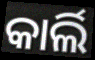
କାର୍ଲି